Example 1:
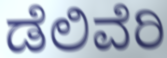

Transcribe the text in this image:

ಡೆಲಿವೆರಿ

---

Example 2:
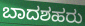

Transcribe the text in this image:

ಬಾದಶಹರು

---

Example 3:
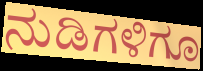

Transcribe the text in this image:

ನುಡಿಗಳಿಗೂ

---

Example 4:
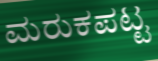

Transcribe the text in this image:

ಮರುಕಪಟ್ಟ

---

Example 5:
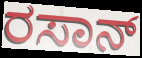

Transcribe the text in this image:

ರಸಾನ್